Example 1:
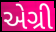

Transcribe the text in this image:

એગ્રી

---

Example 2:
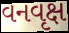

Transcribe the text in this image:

વનવૃક્ષ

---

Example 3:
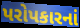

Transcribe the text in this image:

પરોપકારનાં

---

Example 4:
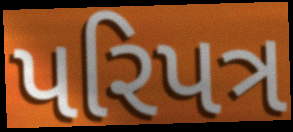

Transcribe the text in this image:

પરિપત્ર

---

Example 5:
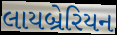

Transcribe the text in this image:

લાયબ્રેરિયન